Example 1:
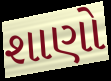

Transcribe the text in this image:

શાણો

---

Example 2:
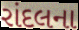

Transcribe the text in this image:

રાંદલના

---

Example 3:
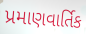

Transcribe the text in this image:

પ્રમાણવાર્તિક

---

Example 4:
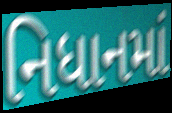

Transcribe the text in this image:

નિધાનમાં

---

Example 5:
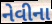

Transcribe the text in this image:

નેવીના